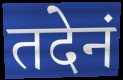
तदेनं